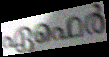
ഏഫെർ